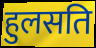
हुलसति